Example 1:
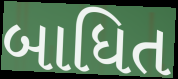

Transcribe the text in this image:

બાધિત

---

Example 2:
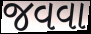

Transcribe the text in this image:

જવવા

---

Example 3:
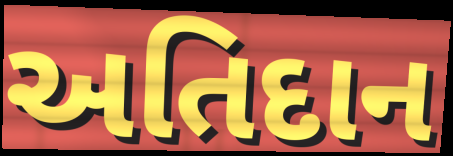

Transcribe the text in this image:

અતિદાન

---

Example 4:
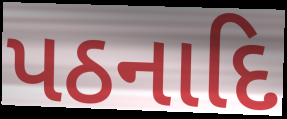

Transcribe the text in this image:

પઠનાદિ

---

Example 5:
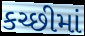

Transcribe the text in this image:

કચ્છીમાં